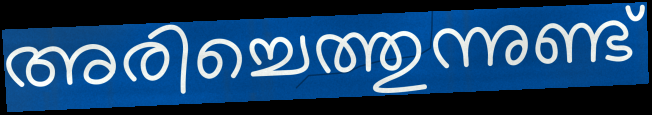
അരിച്ചെത്തുന്നുണ്ട്